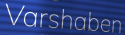
Varshaben